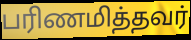
பரிணமித்தவர்